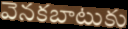
వెనకబాటుకు